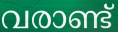
വരാണ്ട്